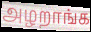
அழறாங்க